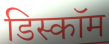
डिस्कॉम